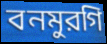
বনমুরগি